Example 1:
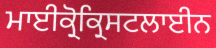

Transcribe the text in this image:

ਮਾਈਕ੍ਰੋਕ੍ਰਿਸਟਲਾਈਨ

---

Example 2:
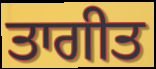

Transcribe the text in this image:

ਤਾਗੀਤ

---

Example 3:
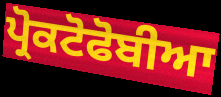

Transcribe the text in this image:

ਪ੍ਰੋਕਟੋਫੋਬੀਆ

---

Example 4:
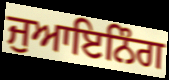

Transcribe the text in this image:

ਜੁਆਇਨਿੰਗ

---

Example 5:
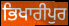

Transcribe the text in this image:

ਭਿਖਾਰੀਪੁਰ